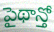
పైథాన్తో